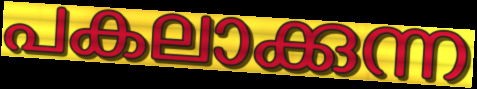
പകലാക്കുന്ന